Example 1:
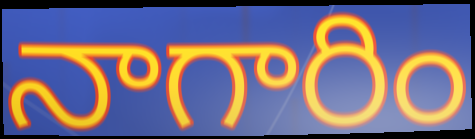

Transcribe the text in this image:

నాగారిం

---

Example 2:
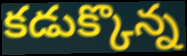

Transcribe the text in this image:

కడుక్కొన్న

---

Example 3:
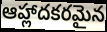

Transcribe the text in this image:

ఆహ్లాదకరమైన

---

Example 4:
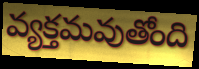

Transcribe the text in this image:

వ్యక్తమవుతోంది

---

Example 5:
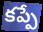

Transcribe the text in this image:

కప్పే